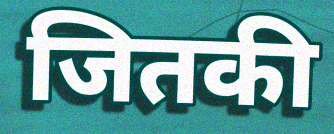
जितकी